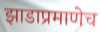
झाडाप्रमाणेच